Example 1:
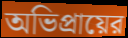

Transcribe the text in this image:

অভিপ্রায়ের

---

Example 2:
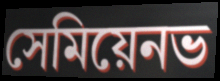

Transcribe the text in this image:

সেমিয়েনভ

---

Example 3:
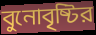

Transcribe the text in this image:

বুনোবৃষ্টির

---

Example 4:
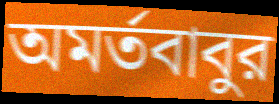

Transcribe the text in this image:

অমর্তবাবুর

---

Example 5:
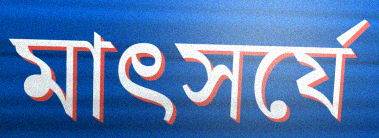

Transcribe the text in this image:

মাৎসর্যে